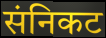
संनिकट